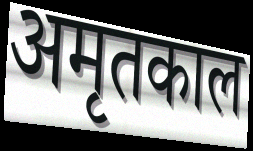
अमृतकाल